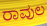
ರಾವುಲ